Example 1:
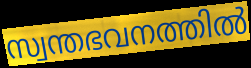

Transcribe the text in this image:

സ്വന്തഭവനത്തിൽ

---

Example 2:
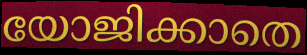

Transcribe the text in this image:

യോജിക്കാതെ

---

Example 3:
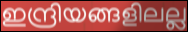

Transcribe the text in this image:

ഇന്ദ്രിയങ്ങളിലല്ല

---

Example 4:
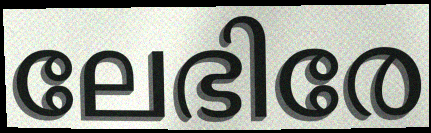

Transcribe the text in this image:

ലേഭിരേ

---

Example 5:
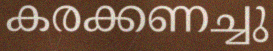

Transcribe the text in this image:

കരക്കണച്ചു